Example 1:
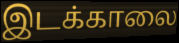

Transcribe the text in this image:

இடக்காலை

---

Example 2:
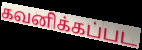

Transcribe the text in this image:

கவனிக்கப்பட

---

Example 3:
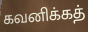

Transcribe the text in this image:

கவனிக்கத்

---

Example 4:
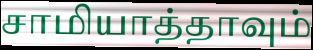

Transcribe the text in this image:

சாமியாத்தாவும்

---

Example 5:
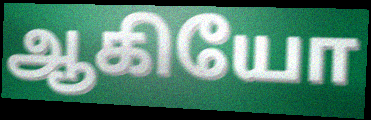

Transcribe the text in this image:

ஆகியோ